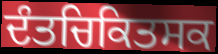
ਦੰਤਚਿਕਿਤਸਕ